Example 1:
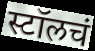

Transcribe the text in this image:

स्टॉलचं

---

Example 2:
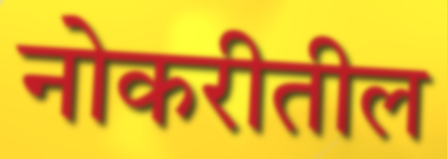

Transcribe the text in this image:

नोकरीतील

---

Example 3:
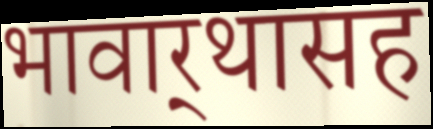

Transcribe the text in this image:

भावार्थासह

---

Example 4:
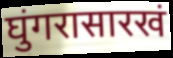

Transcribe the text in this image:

घुंगरासारखं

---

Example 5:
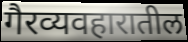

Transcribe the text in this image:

गैरव्यवहारातील